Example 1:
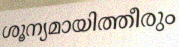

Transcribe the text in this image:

ശൂന്യമായിത്തീരും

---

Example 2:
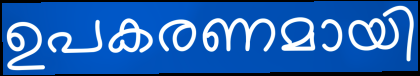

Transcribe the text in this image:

ഉപകരണമായി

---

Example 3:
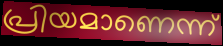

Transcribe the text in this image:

പ്രിയമാണെന്ന്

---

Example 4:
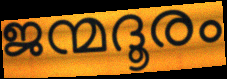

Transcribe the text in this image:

ജന്മദൂരം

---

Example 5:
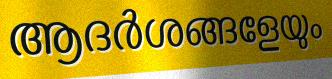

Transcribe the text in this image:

ആദർശങ്ങളേയും